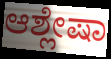
ಆಶ್ಲೇಷಾ